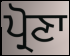
ਪ੍ਰੋਣਾ